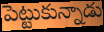
పెట్టుకున్నాడు